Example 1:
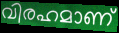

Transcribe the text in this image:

വിരഹമാണ്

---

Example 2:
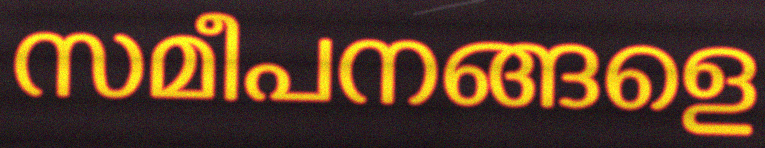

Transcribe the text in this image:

സമീപനങ്ങളെ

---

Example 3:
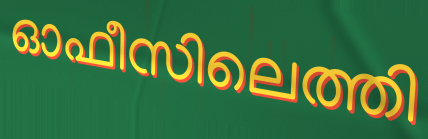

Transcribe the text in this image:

ഓഫീസിലെത്തി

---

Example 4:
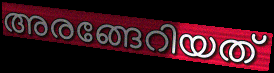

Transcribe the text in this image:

അരങ്ങേറിയത്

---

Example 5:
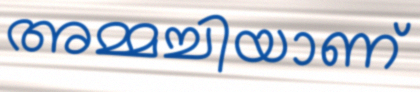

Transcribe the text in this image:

അമ്മച്ചിയാണ്